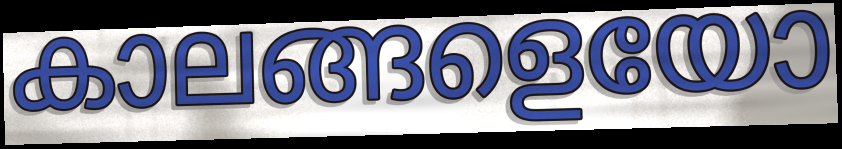
കാലങ്ങളെയോ